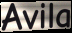
Avila